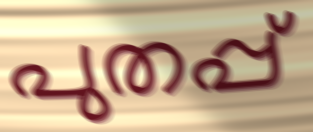
പുതപ്പ്